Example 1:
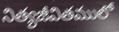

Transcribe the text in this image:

నిత్యజీవితములో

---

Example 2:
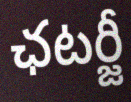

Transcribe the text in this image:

ఛటర్జీ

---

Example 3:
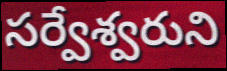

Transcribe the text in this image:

సర్వేశ్వరుని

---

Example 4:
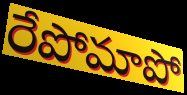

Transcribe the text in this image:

రేపోమాపో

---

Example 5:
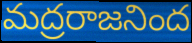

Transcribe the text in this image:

మద్రరాజనింద